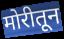
मोरीतून